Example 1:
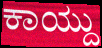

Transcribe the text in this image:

ಕಾಯ್ದು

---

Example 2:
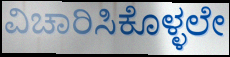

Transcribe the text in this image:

ವಿಚಾರಿಸಿಕೊಳ್ಳಲೇ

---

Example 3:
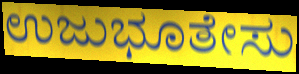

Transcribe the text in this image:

ಉಜುಭೂತೇಸು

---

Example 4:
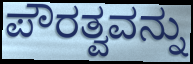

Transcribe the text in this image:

ಪೌರತ್ವವನ್ನು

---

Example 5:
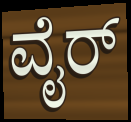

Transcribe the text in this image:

ವೈರ್